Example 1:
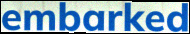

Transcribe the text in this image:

embarked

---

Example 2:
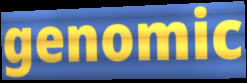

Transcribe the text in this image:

genomic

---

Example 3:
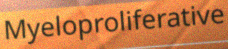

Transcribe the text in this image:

Myeloproliferative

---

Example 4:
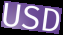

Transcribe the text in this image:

USD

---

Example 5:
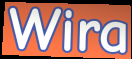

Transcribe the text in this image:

Wira